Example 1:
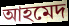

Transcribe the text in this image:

আহমেদ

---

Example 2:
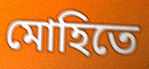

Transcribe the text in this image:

মোহিতে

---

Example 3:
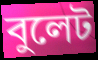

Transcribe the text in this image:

বুলেট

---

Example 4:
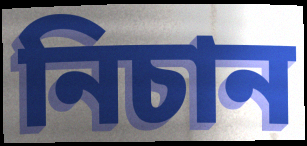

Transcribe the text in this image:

নিচান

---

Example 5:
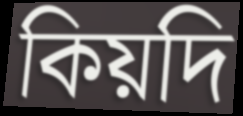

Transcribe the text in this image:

কিয়দি